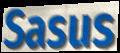
Sasus